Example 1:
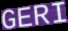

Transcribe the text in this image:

GERI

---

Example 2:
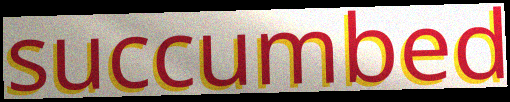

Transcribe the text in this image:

succumbed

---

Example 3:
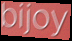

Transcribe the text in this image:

bijoy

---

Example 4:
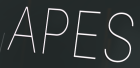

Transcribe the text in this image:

APES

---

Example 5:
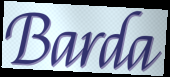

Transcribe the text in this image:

Barda